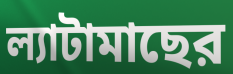
ল্যাটামাছের